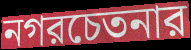
নগরচেতনার